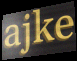
ajke